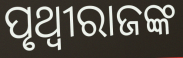
ପୃଥ୍ୱୀରାଜଙ୍କ